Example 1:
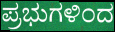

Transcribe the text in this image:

ಪ್ರಭುಗಳಿಂದ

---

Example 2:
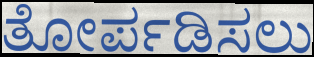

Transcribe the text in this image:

ತೋರ್ಪಡಿಸಲು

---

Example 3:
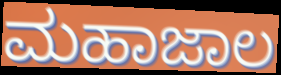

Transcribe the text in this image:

ಮಹಾಜಾಲ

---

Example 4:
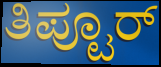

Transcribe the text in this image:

ತಿಪ್ಟೂರ್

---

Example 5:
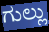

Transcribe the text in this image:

ಗುಲ್ಲು